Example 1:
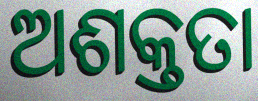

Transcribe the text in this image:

ଅଶକ୍ତତା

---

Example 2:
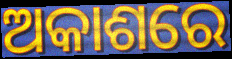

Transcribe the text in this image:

ଅକାଶରେ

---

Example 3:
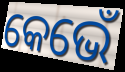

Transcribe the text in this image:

କେଭେଁ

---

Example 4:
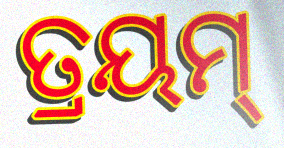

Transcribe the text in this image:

ତ୍ରୟମ୍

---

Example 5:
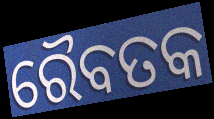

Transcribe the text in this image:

ରୈବତକ